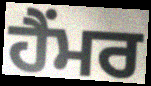
ਹੈਂਮਰ